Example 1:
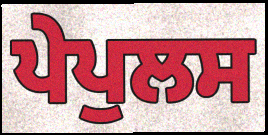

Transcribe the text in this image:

ਪੇਪੁਲਸ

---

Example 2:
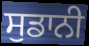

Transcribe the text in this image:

ਸੁਡਾਨੀ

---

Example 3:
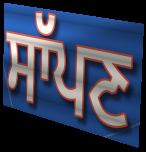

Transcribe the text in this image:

ਸਾੱਪਣ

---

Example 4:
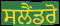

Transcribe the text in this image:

ਸਲੈਂਡਰੋ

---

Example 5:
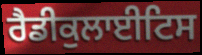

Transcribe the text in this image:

ਰੈਡੀਕੁਲਾਈਟਿਸ